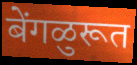
बेंगळुरूत